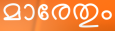
മാരേതും